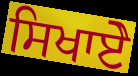
ਸਿਖਾਏੇ